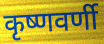
कृष्णवर्णी